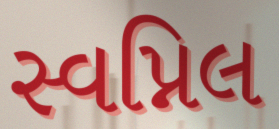
સ્વપ્નિલ